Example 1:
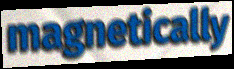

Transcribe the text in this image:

magnetically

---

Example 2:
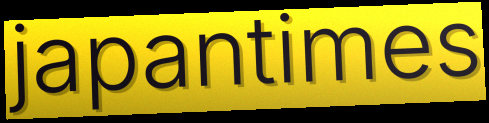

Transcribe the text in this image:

japantimes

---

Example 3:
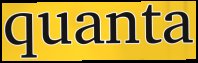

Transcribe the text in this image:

quanta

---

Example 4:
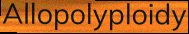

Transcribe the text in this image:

Allopolyploidy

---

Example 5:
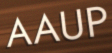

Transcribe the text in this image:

AAUP